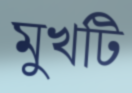
মুখটি